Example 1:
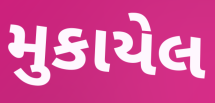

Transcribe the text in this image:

મુકાયેલ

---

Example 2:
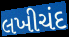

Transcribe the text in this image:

લખીચંદ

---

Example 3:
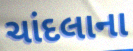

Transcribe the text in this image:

ચાંદલાના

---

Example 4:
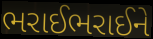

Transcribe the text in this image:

ભરાઈભરાઈને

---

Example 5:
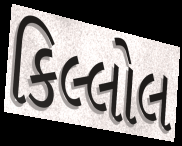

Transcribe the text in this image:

કિલ્લોલ